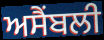
ਅਸੈਂਬਲੀ